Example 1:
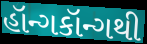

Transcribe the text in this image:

હૉન્ગકૉન્ગથી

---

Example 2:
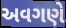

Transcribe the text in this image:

અવગણે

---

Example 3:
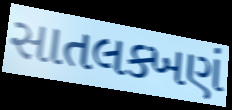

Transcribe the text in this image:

સાતલક્ખણં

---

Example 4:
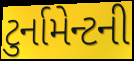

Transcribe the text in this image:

ટુર્નામેન્ટની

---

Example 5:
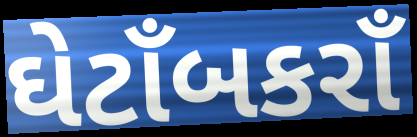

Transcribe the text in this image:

ઘેટાઁબકરાઁ